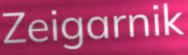
Zeigarnik